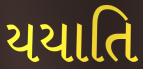
યયાતિ